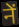
नें